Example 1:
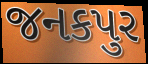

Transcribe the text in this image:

જનકપુર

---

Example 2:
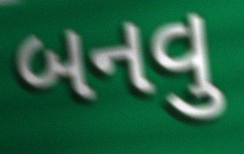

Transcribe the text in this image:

બનવુ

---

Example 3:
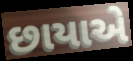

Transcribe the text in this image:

છાયાએ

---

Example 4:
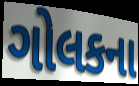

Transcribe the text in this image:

ગોલકના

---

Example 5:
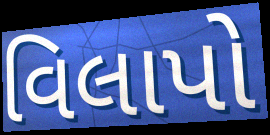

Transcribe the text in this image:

વિલાપો